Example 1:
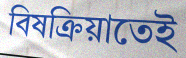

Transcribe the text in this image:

বিষক্রিয়াতেই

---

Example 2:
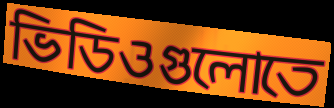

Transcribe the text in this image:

ভিডিওগুলোতে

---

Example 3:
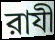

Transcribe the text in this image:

রাযী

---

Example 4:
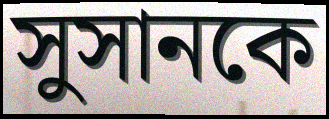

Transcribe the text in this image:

সুসানকে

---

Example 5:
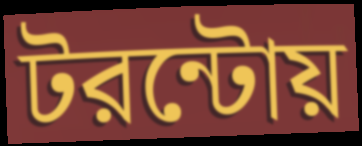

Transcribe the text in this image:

টরন্টোয়